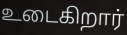
உடைகிறார்